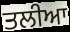
ਤਲੀਆ